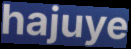
hajuye